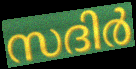
സദിർ